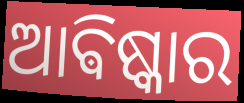
ଆଵିଷ୍କାର